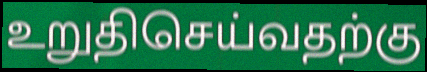
உறுதிசெய்வதற்கு